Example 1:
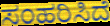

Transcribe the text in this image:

ಸಂಹರಿಸಿದೆ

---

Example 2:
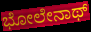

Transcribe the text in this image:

ಭೋಲೇನಾಥ್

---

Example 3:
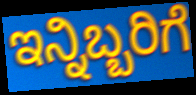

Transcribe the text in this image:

ಇನ್ನಿಬ್ಬರಿಗೆ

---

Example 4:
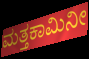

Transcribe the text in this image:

ಮತ್ತಕಾಮಿನೀ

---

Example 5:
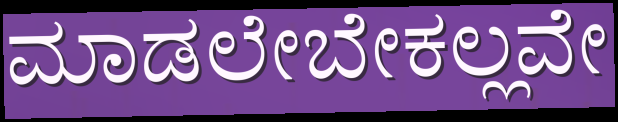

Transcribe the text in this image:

ಮಾಡಲೇಬೇಕಲ್ಲವೇ